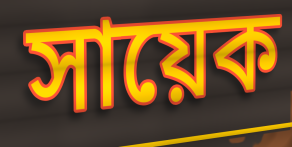
সায়েক